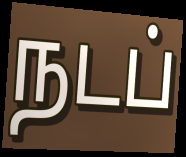
நடப்